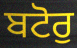
ਬਟੋਰੁ